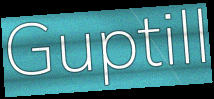
Guptill